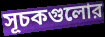
সূচকগুলোর